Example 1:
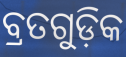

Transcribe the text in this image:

ବ୍ରତଗୁଡ଼ିକ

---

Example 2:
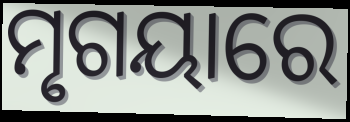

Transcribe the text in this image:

ମୃଗୟାରେ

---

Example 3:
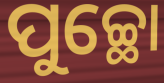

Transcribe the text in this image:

ପୁଚ୍ଛୋ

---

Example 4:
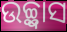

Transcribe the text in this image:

ଉଚ୍ଛ୍ୱାସ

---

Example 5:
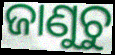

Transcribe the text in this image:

ଜାଣୁଚୁ